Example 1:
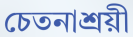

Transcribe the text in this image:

চেতনাশ্রয়ী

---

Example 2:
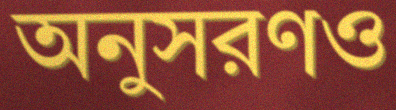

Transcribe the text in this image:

অনুসরণও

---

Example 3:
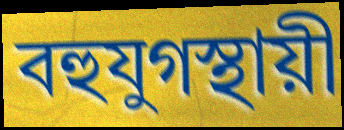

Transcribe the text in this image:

বহুযুগস্থায়ী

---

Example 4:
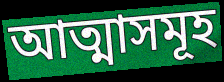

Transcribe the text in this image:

আত্মাসমূহ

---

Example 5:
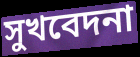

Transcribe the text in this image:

সুখবেদনা